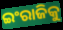
ଇଂରାଜିକୁ